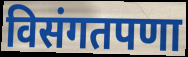
विसंगतपणा